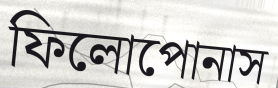
ফিলোপোনাস